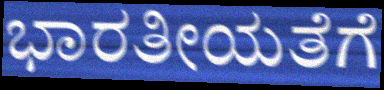
ಭಾರತೀಯತೆಗೆ